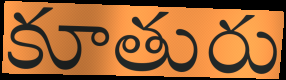
కూతురు